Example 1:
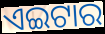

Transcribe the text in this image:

ଏଇଟାର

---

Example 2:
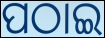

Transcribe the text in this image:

ପଠାଇ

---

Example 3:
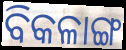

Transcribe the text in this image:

ବିକଳାଙ୍ଗ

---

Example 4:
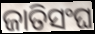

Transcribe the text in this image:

ଜାତିସଂଘ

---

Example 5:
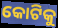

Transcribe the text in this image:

କୋଟିକୁ